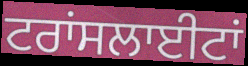
ਟਰਾਂਸਲਾਈਟਾਂ